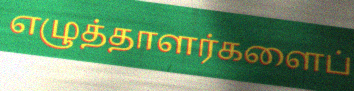
எழுத்தாளர்களைப்